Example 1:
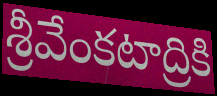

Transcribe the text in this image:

శ్రీవేంకటాద్రికి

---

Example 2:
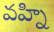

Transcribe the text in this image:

వహ్ని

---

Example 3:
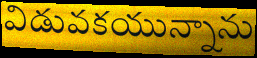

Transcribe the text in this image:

విడువకయున్నాను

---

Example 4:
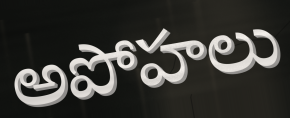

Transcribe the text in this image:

అపోహలు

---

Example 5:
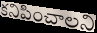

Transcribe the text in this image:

కనిపించాలని